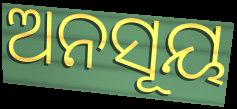
ଅନସୂୟ